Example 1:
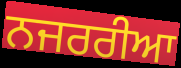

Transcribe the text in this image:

ਨਜਰਰੀਆ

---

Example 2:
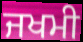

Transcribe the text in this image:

ਜਖਮੀ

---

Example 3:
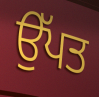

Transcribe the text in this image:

ਉੱਪਤ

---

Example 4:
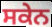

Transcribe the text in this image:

ਸਕੇਨ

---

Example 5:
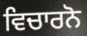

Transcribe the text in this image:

ਵਿਚਾਰਨੋ